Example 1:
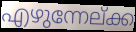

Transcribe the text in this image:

എഴുന്നേല്ക്ക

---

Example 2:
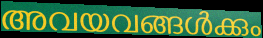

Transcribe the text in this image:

അവയവങ്ങൾക്കും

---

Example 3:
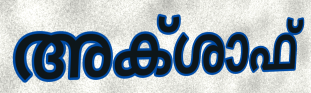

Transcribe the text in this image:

അക്ശാഫ്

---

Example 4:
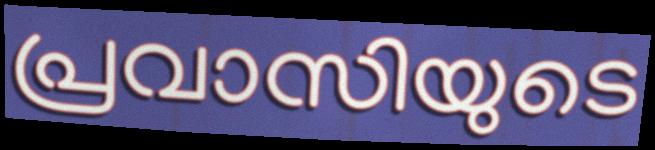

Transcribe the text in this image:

പ്രവാസിയുടെ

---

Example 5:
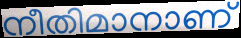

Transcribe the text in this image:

നീതിമാനാണ്